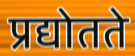
प्रद्योतते